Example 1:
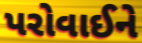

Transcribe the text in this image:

પરોવાઈને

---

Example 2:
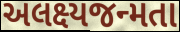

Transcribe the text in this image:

અલક્ષ્યજન્મતા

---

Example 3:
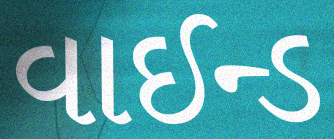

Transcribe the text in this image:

વાઈન્ડ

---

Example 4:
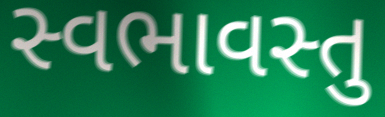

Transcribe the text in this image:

સ્વભાવસ્તુ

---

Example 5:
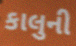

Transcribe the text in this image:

કાલુની